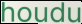
houdu